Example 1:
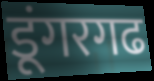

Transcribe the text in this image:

डूंगरगढ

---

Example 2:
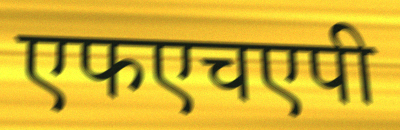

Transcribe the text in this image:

एफएचएपी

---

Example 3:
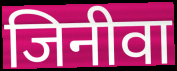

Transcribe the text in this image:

जिनीवा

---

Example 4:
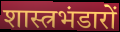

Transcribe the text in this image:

शास्त्रभंडारों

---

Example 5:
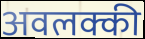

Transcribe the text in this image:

अवलक्की